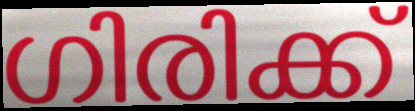
ഗിരിക്ക്